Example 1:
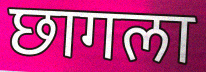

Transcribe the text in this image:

छागला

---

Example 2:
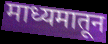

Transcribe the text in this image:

माध्यमातून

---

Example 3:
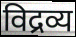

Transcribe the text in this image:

विद्रव्य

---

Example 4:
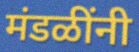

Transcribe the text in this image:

मंडळींनी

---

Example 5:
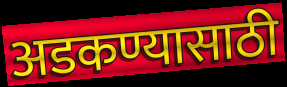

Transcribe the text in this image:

अडकण्यासाठी